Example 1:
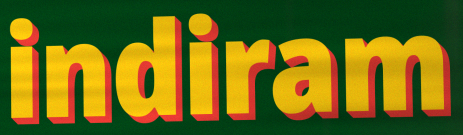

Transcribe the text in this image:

indiram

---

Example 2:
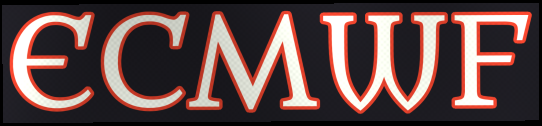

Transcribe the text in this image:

ECMWF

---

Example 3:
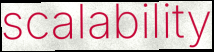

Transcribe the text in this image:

scalability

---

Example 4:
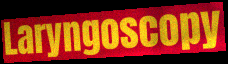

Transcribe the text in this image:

Laryngoscopy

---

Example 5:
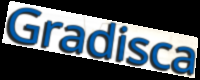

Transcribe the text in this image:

Gradisca